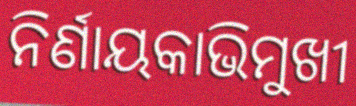
ନିର୍ଣାୟକାଭିମୁଖୀ